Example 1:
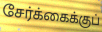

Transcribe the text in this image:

சேர்க்கைக்குப்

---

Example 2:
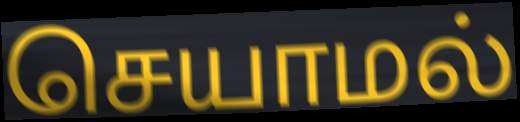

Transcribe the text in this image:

செயாமல்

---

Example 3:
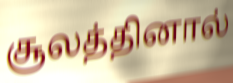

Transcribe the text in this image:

சூலத்தினால்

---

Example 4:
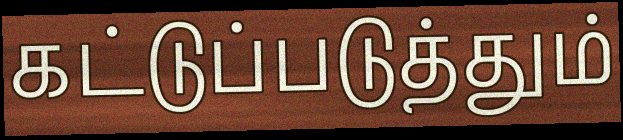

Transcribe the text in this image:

கட்டுப்படுத்தும்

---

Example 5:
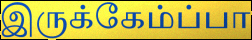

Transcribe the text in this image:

இருக்கேம்ப்பா